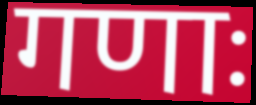
गणाः